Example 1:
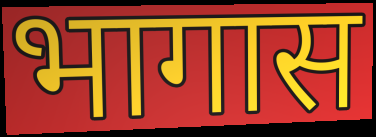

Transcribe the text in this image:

भागास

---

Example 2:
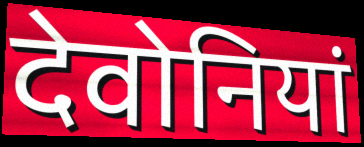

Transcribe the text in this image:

देवोनियां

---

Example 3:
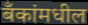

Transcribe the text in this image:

बँकांमधील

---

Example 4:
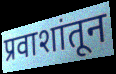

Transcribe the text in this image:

प्रवाशांतून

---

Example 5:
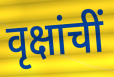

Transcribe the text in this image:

वृक्षांचीं